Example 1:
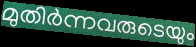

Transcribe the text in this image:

മുതിർന്നവരുടെയും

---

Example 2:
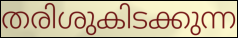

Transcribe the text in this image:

തരിശുകിടക്കുന്ന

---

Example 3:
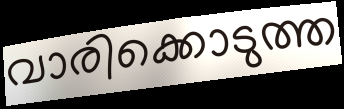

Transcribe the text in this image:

വാരിക്കൊടുത്ത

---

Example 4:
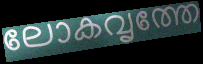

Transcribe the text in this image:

ലോകവൃത്തേ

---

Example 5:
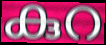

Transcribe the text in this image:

കുറ